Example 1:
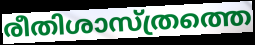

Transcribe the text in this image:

രീതിശാസ്ത്രത്തെ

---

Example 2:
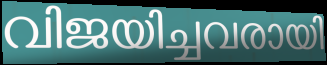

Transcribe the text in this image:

വിജയിച്ചവരായി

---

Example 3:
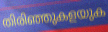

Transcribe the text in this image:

തിരിഞ്ഞുകളയുക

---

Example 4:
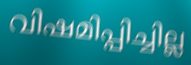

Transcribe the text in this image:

വിഷമിപ്പിച്ചില്ല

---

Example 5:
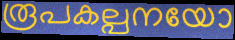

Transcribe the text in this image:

രൂപകല്പനയോ